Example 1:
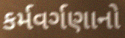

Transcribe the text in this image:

કર્મવર્ગણાનો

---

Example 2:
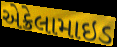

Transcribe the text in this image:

એક્રેલામાઇડ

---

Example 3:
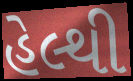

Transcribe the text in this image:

હેલ્થી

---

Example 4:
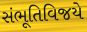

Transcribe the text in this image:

સંભૂતિવિજયે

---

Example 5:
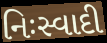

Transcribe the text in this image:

નિઃસ્વાદી